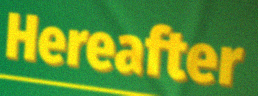
Hereafter